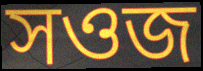
সওজ